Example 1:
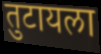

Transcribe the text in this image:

तुटायला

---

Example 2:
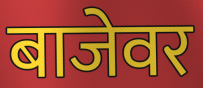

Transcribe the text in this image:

बाजेवर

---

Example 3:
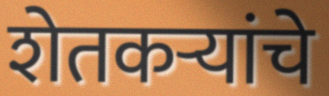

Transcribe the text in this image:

शेतकऱ्यांचे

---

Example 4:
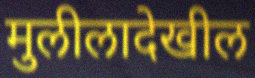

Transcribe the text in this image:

मुलीलादेखील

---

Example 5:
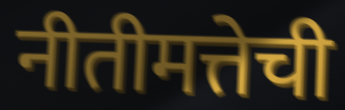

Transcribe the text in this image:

नीतीमत्तेची